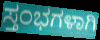
ಸ್ತಂಭಗಳಾಗಿ